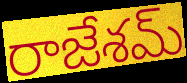
రాజేశమ్